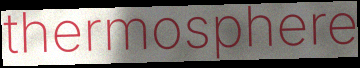
thermosphere